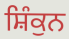
ਸ਼ਿੰਕੁਨ